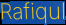
Rafiqul